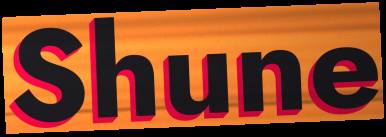
Shune